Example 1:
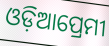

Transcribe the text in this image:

ଓଡ଼ିଆପ୍ରେମୀ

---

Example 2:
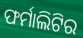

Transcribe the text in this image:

ଫର୍ମାଲିଟିର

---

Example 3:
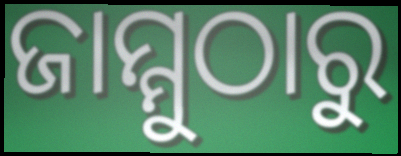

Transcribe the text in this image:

ଜାମ୍ମୁଠାରୁ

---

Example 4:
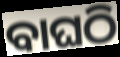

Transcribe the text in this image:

ବାଘଠି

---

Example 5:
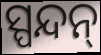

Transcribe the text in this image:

ସ୍ପନ୍ଦନ୍